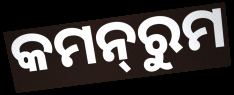
କମନ୍‌ରୁମ